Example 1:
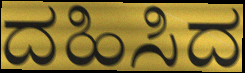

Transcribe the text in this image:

ದಹಿಸಿದ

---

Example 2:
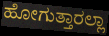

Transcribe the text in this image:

ಹೋಗುತ್ತಾರಲ್ಲಾ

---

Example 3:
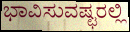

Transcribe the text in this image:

ಭಾವಿಸುವಷ್ಟರಲ್ಲಿ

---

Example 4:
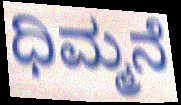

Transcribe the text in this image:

ಧಿಮ್ಮನೆ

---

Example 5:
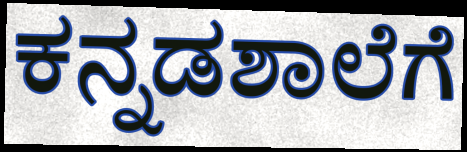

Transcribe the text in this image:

ಕನ್ನಡಶಾಲೆಗೆ